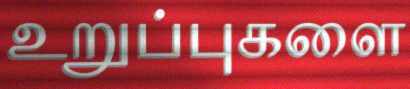
உறுப்புகளை